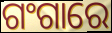
ଗଂଗାରେ